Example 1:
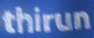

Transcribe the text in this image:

thirun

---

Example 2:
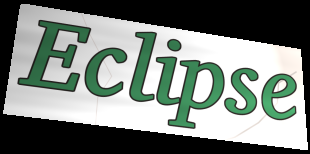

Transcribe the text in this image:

Eclipse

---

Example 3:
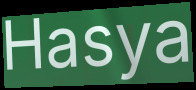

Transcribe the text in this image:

Hasya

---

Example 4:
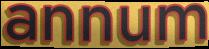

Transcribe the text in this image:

annum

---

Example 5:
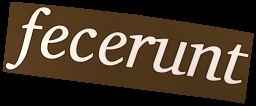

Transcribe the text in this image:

fecerunt